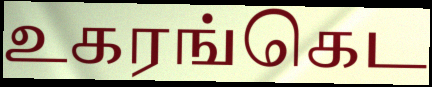
உகரங்கெட